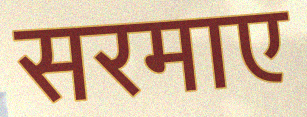
सरमाए